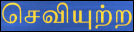
செவியுற்ற